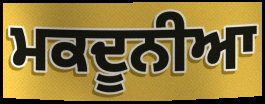
ਮਕਦੂਨੀਆ